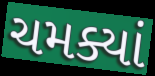
ચમક્યાં